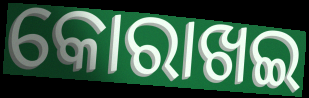
କୋରାଖଇ